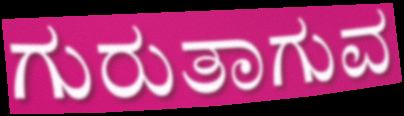
ಗುರುತಾಗುವ